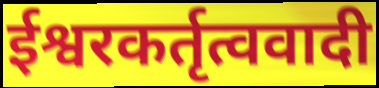
ईश्वरकर्तृत्ववादी